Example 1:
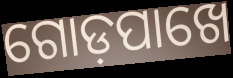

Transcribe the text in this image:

ଗୋଡ଼ପାଖେ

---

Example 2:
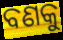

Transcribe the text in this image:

ବଣକୁ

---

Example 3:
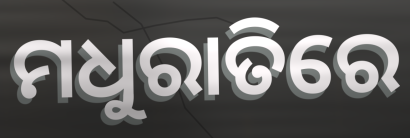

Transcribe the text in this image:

ମଧୁରାତିରେ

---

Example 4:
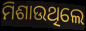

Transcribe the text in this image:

ମିଶାଉଥିଲେ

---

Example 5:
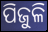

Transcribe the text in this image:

ପିଜୁଳି